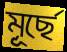
মূর্ছে